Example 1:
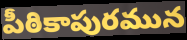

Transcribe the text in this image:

పీఠికాపురమున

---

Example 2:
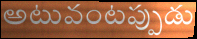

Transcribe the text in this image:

అటువంటప్పుడు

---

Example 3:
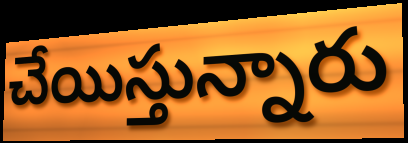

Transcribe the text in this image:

చేయిస్తున్నారు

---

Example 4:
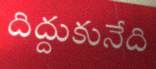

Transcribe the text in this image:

దిద్దుకునేది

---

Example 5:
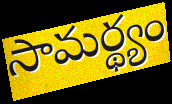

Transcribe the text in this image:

సామర్థ్యం